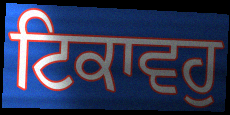
ਟਿਕਾਵਹੁ